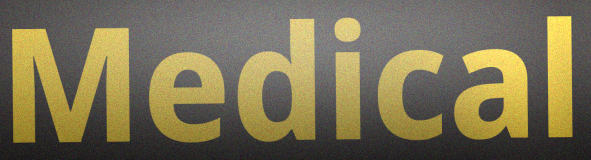
Medical